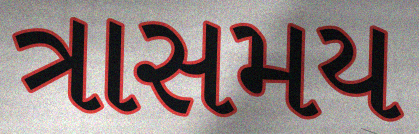
ત્રાસમય